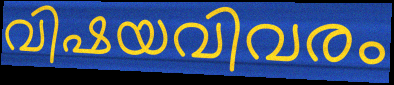
വിഷയവിവരം